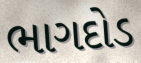
ભાગદોડ